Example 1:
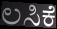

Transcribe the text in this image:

ಲಸಿಕೆ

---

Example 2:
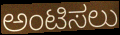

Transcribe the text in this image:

ಅಂಟಿಸಲು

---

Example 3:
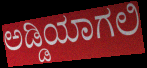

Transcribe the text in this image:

ಅಡ್ಡಿಯಾಗಲಿ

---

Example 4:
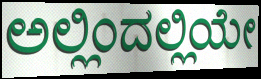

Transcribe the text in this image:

ಅಲ್ಲಿಂದಲ್ಲಿಯೇ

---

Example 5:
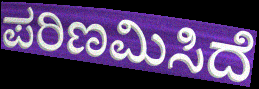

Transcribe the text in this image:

ಪರಿಣಮಿಸಿದೆ